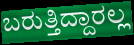
ಬರುತ್ತಿದ್ದಾರಲ್ಲ